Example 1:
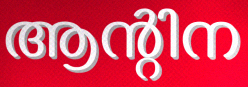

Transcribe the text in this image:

ആന്റിന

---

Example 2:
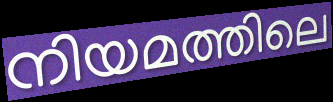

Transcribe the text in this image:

നിയമത്തിലെ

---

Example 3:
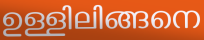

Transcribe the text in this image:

ഉള്ളിലിങ്ങനെ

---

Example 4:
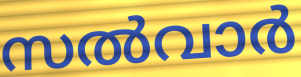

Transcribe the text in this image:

സൽവാർ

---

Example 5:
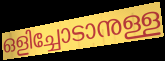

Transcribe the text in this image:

ഒളിച്ചോടാനുള്ള